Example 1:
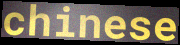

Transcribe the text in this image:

chinese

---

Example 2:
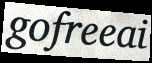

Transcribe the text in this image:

gofreeai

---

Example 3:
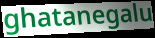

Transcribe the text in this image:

ghatanegalu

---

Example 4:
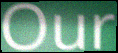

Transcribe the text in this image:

Our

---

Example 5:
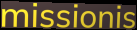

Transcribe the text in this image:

missionis